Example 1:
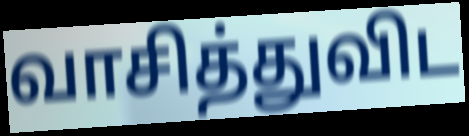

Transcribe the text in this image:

வாசித்துவிட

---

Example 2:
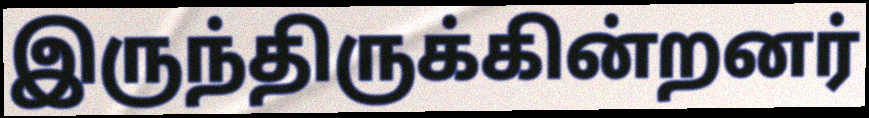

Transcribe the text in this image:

இருந்திருக்கின்றனர்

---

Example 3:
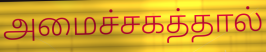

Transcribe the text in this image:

அமைச்சகத்தால்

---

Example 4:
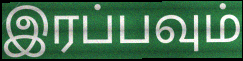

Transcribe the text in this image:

இரப்பவும்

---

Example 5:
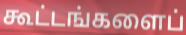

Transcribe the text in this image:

கூட்டங்களைப்